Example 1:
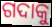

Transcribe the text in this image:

ଗଦାକୁ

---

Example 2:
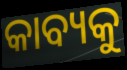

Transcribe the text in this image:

କାବ୍ୟକୁ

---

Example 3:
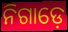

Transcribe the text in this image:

ନିଗାଡ଼େ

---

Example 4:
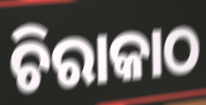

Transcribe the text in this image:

ଚିରାକାଠ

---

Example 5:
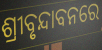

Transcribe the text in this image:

ଶ୍ରୀବୃନ୍ଦାବନରେ